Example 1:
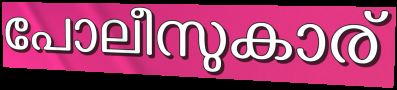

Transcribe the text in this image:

പോലീസുകാര്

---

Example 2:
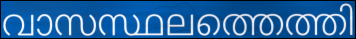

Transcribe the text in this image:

വാസസ്ഥലത്തെത്തി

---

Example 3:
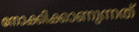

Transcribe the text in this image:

നോക്കിക്കാണുന്നത്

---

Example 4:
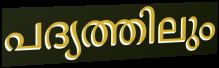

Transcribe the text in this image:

പദ്യത്തിലും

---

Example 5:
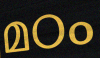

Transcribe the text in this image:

മഠം